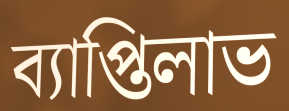
ব্যাপ্তিলাভ